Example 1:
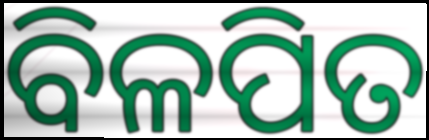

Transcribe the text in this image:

ବିଳପିତ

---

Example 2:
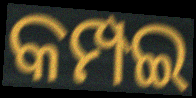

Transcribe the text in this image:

କମ୍ପଇ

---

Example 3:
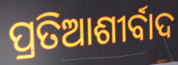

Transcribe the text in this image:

ପ୍ରତିଆଶୀର୍ବାଦ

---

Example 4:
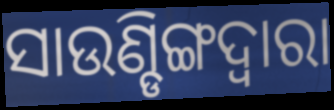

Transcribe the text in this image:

ସାଉଣ୍ଡିଙ୍ଗଦ୍ୱାରା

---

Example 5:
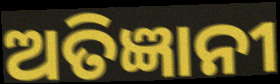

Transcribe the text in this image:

ଅତିଜ୍ଞାନୀ